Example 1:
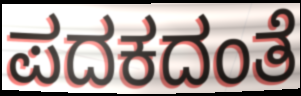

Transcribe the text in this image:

ಪದಕದಂತೆ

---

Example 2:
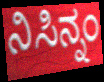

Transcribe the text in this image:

ನಿಸಿನ್ನಂ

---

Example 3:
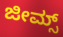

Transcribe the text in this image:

ಜೀಮ್ಸ್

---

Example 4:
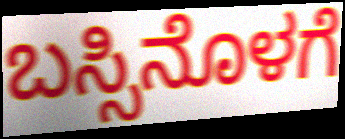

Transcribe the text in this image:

ಬಸ್ಸಿನೊಳಗೆ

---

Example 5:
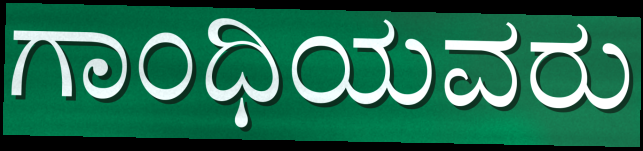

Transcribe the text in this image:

ಗಾಂಧಿಯವರು